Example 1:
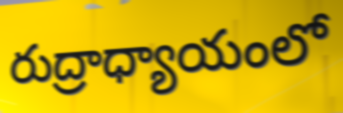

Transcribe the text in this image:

రుద్రాధ్యాయంలో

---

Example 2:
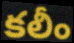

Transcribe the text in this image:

కలీం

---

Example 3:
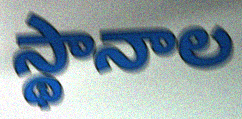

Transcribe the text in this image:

స్థానాల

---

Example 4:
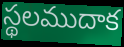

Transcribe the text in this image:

స్థలముదాక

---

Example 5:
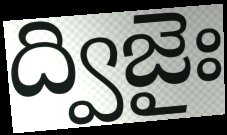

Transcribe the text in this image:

ద్విజైః